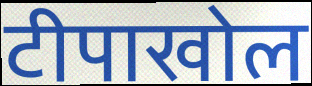
टीपाखोल